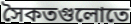
সৈকতগুলোতে